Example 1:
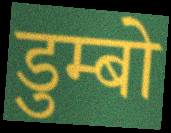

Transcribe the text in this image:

डुम्बो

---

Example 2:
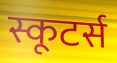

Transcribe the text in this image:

स्कूटर्स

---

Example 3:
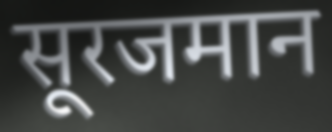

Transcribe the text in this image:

सूरजमान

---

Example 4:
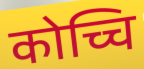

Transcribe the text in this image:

कोच्चि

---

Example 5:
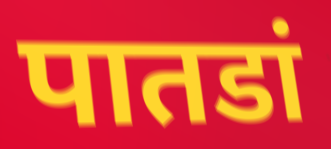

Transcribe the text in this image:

पातडां